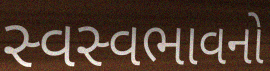
સ્વસ્વભાવનો